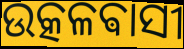
ଉତ୍କଳଵାସୀ